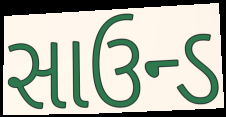
સાઉન્ડ